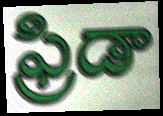
ఫ్రిడా